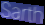
Sarth